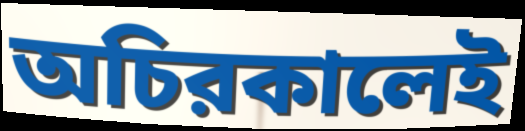
অচিরকালেই